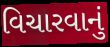
વિચારવાનું